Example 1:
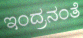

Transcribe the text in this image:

ಇಂದ್ರನಂತೆ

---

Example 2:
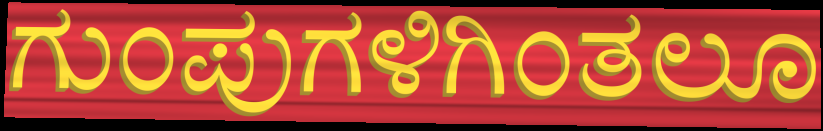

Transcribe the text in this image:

ಗುಂಪುಗಳಿಗಿಂತಲೂ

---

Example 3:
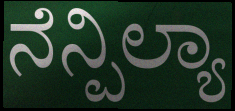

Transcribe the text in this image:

ನೆನ್ಪಿಲ್ಯಾ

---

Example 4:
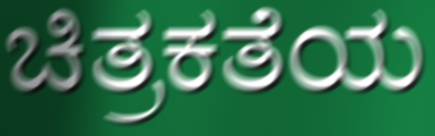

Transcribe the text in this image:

ಚಿತ್ರಕತೆಯ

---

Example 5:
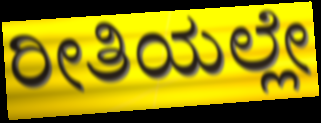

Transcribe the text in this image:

ರೀತಿಯಲ್ಲೇ